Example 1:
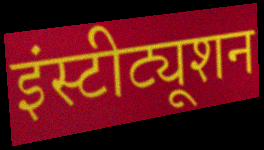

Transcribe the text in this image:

इंस्टीट्यूशन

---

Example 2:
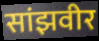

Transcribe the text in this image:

सांझवीर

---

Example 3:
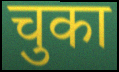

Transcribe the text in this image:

चुका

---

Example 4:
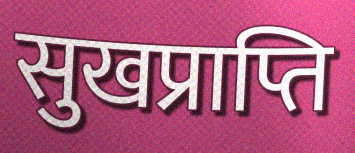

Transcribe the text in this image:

सुखप्राप्ति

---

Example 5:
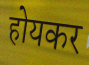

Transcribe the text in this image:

होयकर